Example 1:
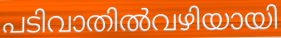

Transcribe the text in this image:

പടിവാതിൽവഴിയായി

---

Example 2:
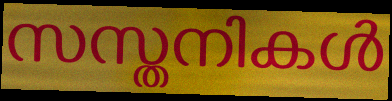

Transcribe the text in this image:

സസ്തനികൾ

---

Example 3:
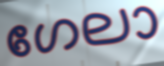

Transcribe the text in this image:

ഗേലാ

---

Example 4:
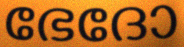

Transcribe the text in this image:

ഭേദോ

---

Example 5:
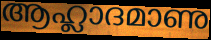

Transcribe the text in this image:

ആഹ്ലാദമാണു